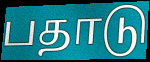
பதாடு